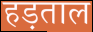
हड़ताल